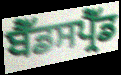
ਬੈੱਡਸਪ੍ਰੈੱਡ